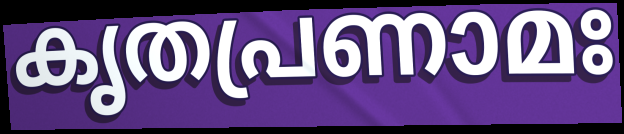
കൃതപ്രണാമഃ